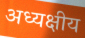
अध्यक्षीय